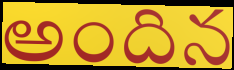
అందిన